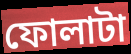
ফোলাটা